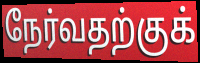
நேர்வதற்குக்